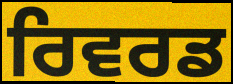
ਰਿਵਰਡ